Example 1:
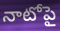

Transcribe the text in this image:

నాటోపై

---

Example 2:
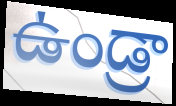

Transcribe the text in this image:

ఉండ్రా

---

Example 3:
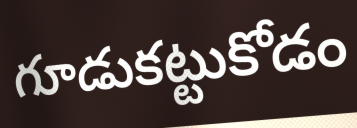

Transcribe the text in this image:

గూడుకట్టుకోడం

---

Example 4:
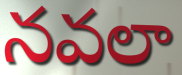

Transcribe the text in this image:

నవలా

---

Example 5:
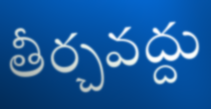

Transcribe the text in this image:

తీర్చవద్దు